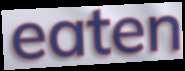
eaten